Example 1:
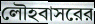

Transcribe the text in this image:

লৌহবাসরের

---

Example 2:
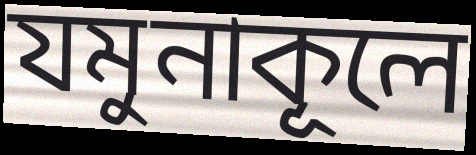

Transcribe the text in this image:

যমুনাকূলে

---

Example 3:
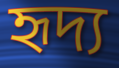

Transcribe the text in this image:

হৃদ্য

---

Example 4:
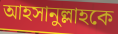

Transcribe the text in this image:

আহসানুল্লাহকে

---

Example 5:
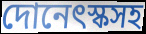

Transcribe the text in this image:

দোনেৎস্কসহ